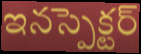
ఇనస్పెక్టర్